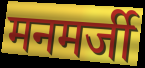
मनमर्जी